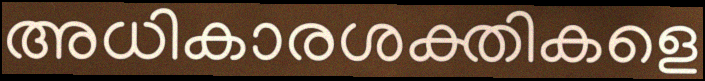
അധികാരശക്തികളെ